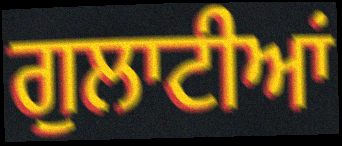
ਗੁਲਾਟੀਆਂ